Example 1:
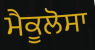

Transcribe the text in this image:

ਮੈਕੂਲੋਸਾ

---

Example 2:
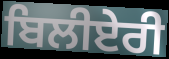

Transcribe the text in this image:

ਬਿਲੀਏਰੀ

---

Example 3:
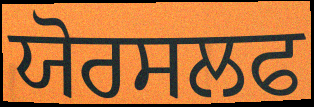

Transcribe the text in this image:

ਯੋਰਸਲਫ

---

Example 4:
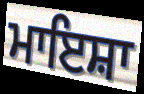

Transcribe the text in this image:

ਮਾਇਸ਼ਾ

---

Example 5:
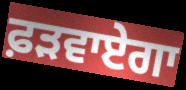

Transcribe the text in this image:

ਫ਼ੜਵਾਏਗਾ